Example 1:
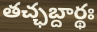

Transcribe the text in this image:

తచ్ఛబ్దార్థః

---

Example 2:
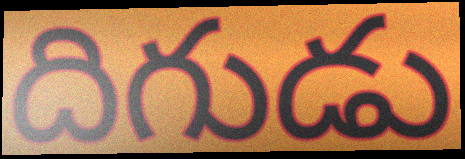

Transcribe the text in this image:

దిగుడు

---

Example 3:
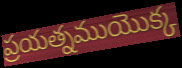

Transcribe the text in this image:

ప్రయత్నముయొక్క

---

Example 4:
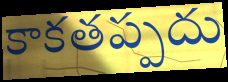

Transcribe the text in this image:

కాకతప్పదు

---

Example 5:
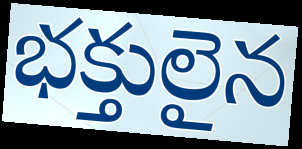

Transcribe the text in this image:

భక్తులైన